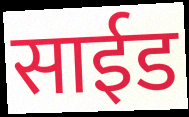
साईड